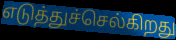
எடுத்துச்செல்கிறது